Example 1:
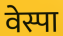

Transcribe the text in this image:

वेस्पा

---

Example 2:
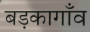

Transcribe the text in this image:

बड़कागाँव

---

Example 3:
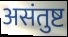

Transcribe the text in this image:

असंतुष्ट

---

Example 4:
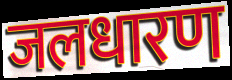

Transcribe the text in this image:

जलधारण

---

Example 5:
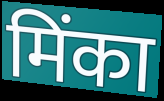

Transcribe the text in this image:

मिंका